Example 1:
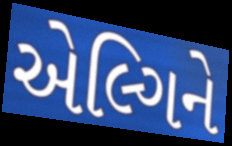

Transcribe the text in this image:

એલ્ગિને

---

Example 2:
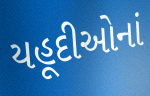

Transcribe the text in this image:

યહૂદીઓનાં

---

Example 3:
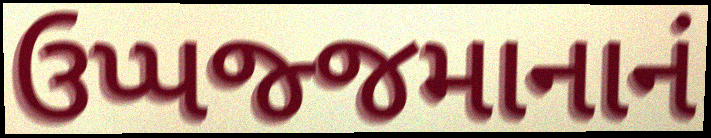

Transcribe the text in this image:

ઉપ્પજ્જમાનાનં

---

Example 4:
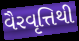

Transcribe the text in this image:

વૈરવૃત્તિથી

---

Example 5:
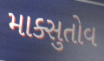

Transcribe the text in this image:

માક્સુતોવ